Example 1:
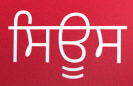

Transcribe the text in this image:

ਸਿਊਸ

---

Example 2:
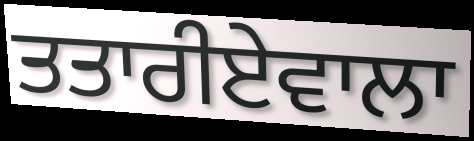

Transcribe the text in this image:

ਤਤਾਰੀਏਵਾਲਾ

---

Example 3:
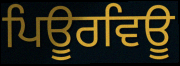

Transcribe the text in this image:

ਪਿਊਰਵਿਊ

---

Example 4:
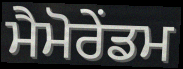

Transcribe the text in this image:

ਮੈਮੋਰੇਂਡਮ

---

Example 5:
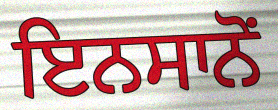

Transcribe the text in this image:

ਇਨਸਾਨੋਂ